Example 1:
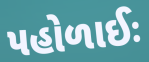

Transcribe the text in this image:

પહોળાઈઃ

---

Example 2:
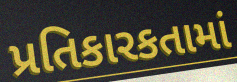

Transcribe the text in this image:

પ્રતિકારકતામાં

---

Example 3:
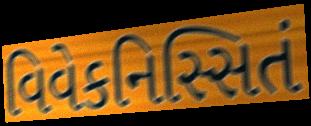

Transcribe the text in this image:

વિવેકનિસ્સિતં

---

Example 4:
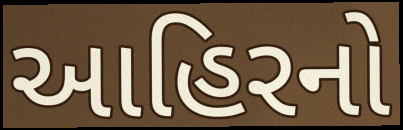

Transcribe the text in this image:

આહિરનો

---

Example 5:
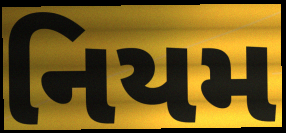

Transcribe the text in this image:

નિયમ